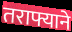
तराफ्याने